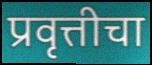
प्रवृत्तीचा